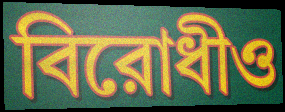
বিরোধীও